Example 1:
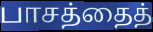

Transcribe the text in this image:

பாசத்தைத்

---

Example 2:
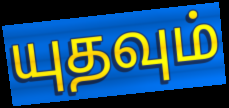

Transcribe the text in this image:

யுதவும்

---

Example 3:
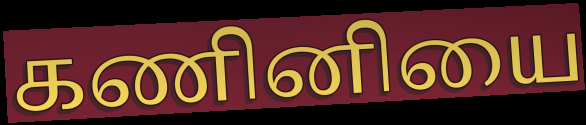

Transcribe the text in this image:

கணினியை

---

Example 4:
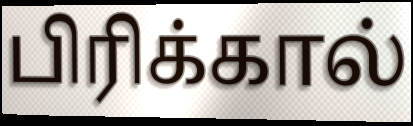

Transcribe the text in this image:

பிரிக்கால்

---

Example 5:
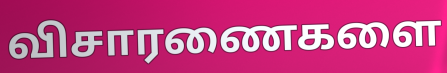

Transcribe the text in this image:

விசாரணைகளை